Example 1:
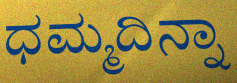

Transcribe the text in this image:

ಧಮ್ಮದಿನ್ನಾ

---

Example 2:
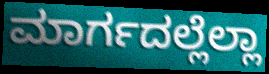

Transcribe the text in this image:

ಮಾರ್ಗದಲ್ಲೆಲ್ಲಾ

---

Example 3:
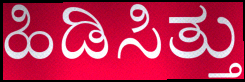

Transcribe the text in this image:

ಹಿಡಿಸಿತ್ತು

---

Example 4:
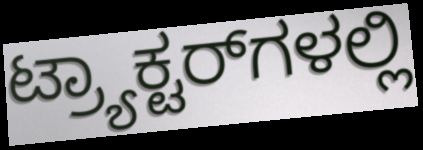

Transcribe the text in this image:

ಟ್ರ್ಯಾಕ್ಟರ್‌ಗಳಲ್ಲಿ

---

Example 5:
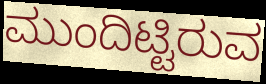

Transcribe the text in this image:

ಮುಂದಿಟ್ಟಿರುವ